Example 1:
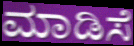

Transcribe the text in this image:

ಮಾಡಿಸೆ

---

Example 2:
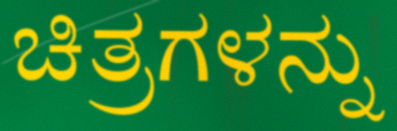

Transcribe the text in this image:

ಚಿತ್ರಗಳನ್ನು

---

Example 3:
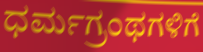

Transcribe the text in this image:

ಧರ್ಮಗ್ರಂಥಗಳಿಗೆ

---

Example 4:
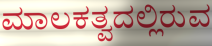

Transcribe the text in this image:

ಮಾಲಕತ್ವದಲ್ಲಿರುವ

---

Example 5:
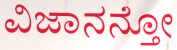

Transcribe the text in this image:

ವಿಜಾನನ್ತೋ